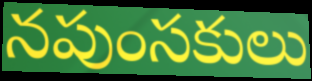
నపుంసకులు